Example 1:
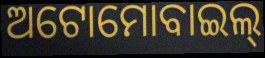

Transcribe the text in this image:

ଅଟୋମୋବାଇଲ୍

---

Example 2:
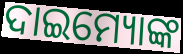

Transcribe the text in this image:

ଦାଇମ୍ଯୋଙ୍କ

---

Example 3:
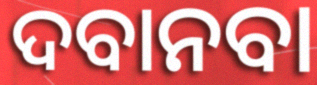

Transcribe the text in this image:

ଦବାନବା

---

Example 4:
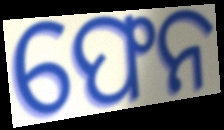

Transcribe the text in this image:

ଫେନ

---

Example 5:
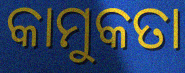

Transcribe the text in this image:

କାମୁକତା